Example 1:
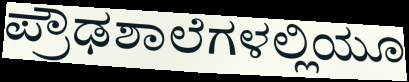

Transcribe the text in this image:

ಪ್ರೌಢಶಾಲೆಗಳಲ್ಲಿಯೂ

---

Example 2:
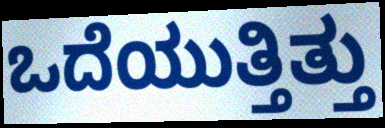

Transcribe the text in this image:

ಒದೆಯುತ್ತಿತ್ತು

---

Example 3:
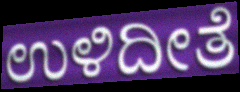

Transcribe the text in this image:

ಉಳಿದೀತೆ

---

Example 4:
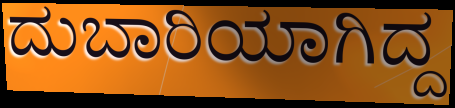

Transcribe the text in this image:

ದುಬಾರಿಯಾಗಿದ್ದ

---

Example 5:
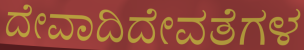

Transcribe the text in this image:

ದೇವಾದಿದೇವತೆಗಳ